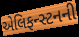
એલિફન્સ્ટનની